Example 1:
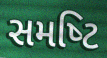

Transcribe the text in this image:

સમષ્‍ટિ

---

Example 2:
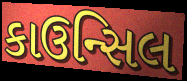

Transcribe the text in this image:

કાઉન્‍સિલ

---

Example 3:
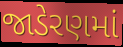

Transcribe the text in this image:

જાડેરણમાં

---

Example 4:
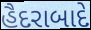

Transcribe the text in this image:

હૈદરાબાદે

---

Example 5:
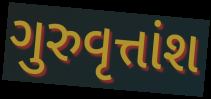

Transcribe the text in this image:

ગુરુવૃત્તાંશ